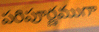
పరిపూర్ణముగా